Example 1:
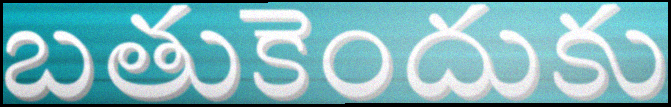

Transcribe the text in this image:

బతుకెందుకు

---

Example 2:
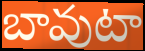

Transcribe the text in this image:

బావుటా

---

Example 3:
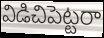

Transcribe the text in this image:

విడిచిపెట్టరా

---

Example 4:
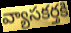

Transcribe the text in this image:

వ్యాసకర్తకి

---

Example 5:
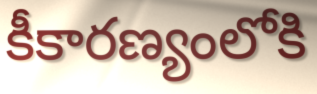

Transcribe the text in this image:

కీకారణ్యంలోకి